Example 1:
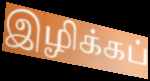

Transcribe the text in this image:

இழிக்கப்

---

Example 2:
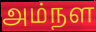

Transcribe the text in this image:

அம்நள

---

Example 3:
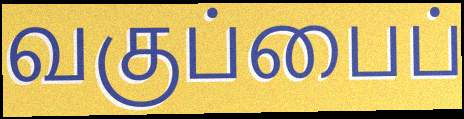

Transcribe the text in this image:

வகுப்பைப்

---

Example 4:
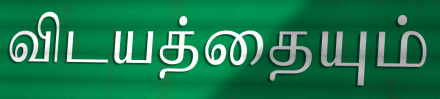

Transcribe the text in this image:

விடயத்தையும்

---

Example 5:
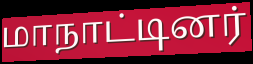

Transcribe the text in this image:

மாநாட்டினர்